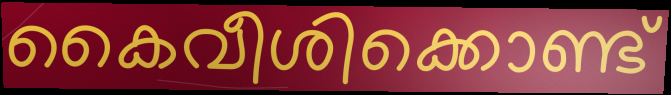
കൈവീശിക്കൊണ്ട്